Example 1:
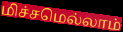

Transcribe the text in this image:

மிச்சமெல்லாம்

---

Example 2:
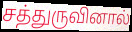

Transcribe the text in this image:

சத்துருவினால்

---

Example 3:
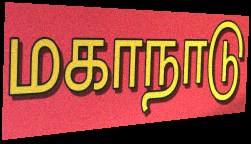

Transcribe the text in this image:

மகாநாடு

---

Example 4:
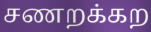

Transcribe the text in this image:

சணறக்கற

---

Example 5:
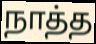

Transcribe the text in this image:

நாத்த